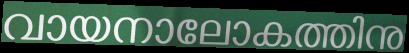
വായനാലോകത്തിനു